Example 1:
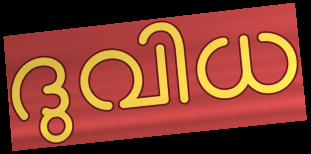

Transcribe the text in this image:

ദുവിധ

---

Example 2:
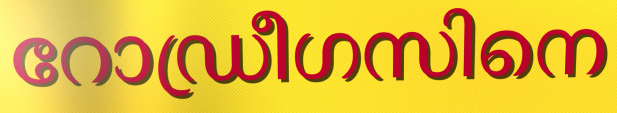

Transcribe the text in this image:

റോഡ്രീഗസിനെ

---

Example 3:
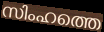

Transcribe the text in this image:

സിംഹത്തെ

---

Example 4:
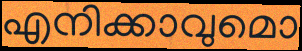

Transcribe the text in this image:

എനിക്കാവുമൊ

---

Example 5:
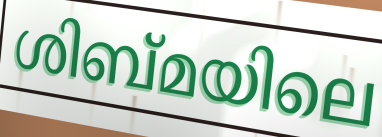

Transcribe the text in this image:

ശിബ്മയിലെ